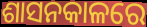
ଶାସନକାଳରେ